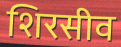
शिरसीव